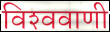
विश्ववाणी